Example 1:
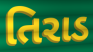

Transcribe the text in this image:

તિરાડ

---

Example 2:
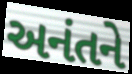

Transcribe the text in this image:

અનંતને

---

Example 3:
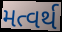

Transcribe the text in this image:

મત્વર્થ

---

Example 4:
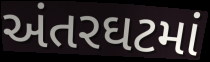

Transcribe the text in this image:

અંતરઘટમાં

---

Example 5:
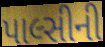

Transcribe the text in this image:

પાલ્સીની